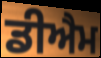
ਡੀਐਮ